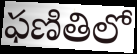
ఫణితిలో